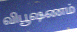
விபூஷணம்